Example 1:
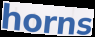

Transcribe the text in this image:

horns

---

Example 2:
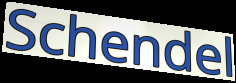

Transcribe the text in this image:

Schendel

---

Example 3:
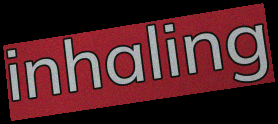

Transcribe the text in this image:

inhaling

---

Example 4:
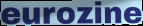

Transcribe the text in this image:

eurozine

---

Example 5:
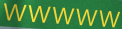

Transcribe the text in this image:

wwwww